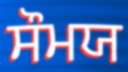
ਸੌਮਯ